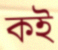
কই